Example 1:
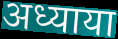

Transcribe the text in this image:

अध्याया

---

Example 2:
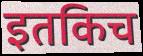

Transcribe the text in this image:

इतकिच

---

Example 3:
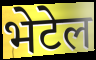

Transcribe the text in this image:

भेटेल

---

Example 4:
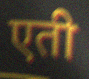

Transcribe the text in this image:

एती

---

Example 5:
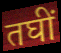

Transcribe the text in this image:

तघीं